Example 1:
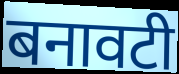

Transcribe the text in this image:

बनावटी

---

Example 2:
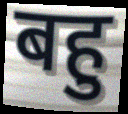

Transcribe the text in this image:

बहु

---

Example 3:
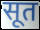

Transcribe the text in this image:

सूत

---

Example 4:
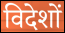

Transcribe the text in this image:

विदेशों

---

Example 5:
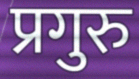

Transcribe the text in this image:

प्रगुरु